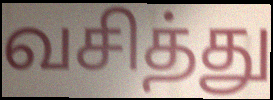
வசித்து